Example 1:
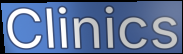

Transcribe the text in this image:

Clinics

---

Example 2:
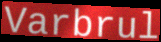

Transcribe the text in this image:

Varbrul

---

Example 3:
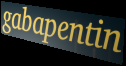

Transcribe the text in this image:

gabapentin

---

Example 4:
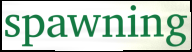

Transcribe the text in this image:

spawning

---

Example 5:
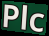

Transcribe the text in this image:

Plc